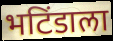
भटिंडाला